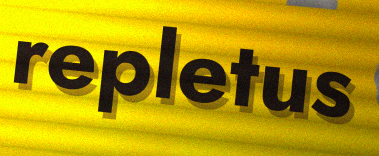
repletus